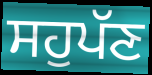
ਸਹੁਪੱਣ